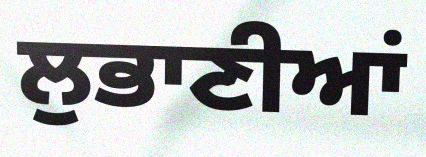
ਲੁਭਾਣੀਆਂ